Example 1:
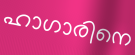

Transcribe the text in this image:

ഹാഗാരിനെ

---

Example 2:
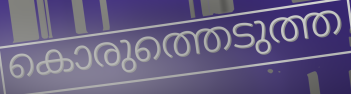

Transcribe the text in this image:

കൊരുത്തെടുത്ത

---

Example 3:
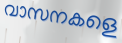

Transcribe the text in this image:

വാസനകളെ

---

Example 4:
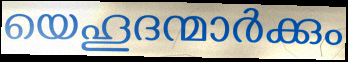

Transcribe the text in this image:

യെഹൂദന്മാർക്കും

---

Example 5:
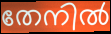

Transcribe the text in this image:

തേനിൽ